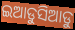
ଇଆଡୁସିଆଡୁ